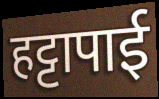
हट्टापाई